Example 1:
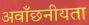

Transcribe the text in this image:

अवाँछनीयता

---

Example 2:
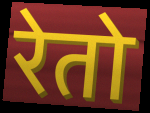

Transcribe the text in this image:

रेतो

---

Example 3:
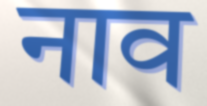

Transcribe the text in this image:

नाव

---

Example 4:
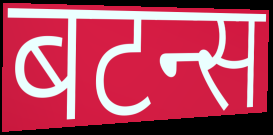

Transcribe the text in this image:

बटन्स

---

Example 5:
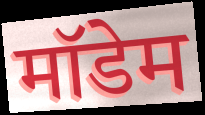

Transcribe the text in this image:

मॉडेम